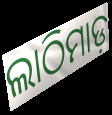
ଲାଠିମାଡ଼